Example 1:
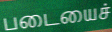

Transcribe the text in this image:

படையைச்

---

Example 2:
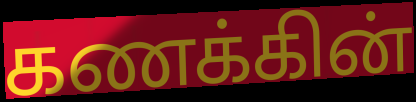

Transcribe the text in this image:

கணக்கின்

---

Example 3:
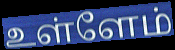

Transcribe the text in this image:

உள்ளேம்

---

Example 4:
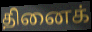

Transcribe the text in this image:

தினைக்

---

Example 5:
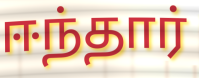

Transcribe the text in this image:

ஈந்தார்